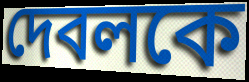
দেবলকে